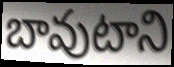
బావుటాని